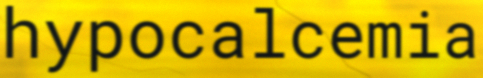
hypocalcemia